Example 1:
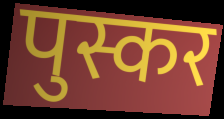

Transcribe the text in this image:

पुस्कर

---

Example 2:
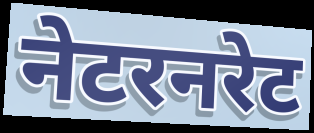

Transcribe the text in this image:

नेटरनरेट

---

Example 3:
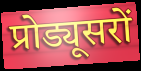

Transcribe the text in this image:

प्रोड्यूसरों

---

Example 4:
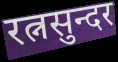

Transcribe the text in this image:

रत्नसुन्दर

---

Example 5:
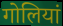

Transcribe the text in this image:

गोलियां